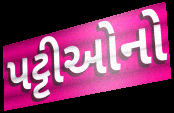
પટ્ટીઓનો